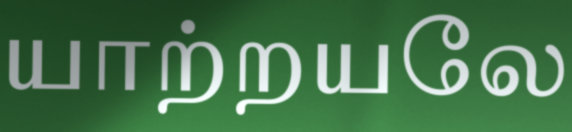
யாற்றயலே